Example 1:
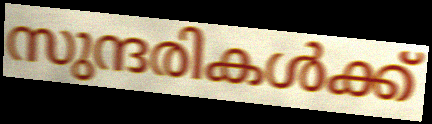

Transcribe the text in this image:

സുന്ദരികൾക്ക്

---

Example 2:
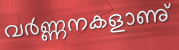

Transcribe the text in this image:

വർണ്ണനകളാണു്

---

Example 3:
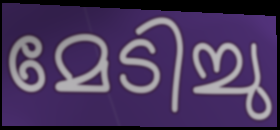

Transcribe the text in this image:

മേടിച്ചു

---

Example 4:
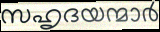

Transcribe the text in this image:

സഹൃദയന്മാർ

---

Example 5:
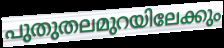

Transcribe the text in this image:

പുതുതലമുറയിലേക്കും